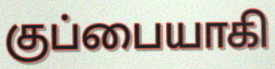
குப்பையாகி